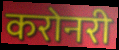
करोनरी